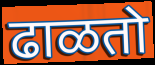
ढाळतो